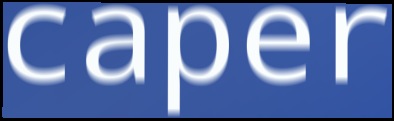
caper